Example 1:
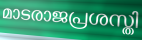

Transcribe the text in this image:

മാടരാജപ്രശസ്തി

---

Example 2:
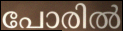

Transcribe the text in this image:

പോരിൽ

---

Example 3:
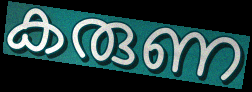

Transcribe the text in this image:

കരുണ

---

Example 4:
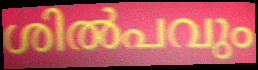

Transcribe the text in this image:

ശിൽപവും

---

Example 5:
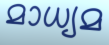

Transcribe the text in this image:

മാധ്യമ